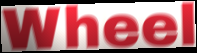
Wheel